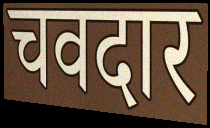
चवदार